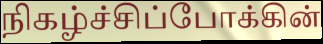
நிகழ்ச்சிப்போக்கின்